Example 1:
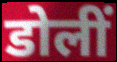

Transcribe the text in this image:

डोलीं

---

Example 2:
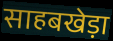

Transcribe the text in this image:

साहबखेड़ा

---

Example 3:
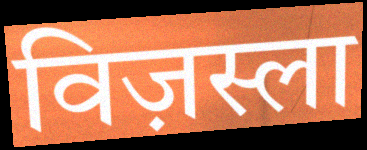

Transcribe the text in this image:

विज़स्ला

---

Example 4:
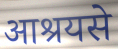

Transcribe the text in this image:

आश्रयसे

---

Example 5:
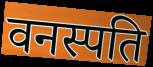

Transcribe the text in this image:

वनस्पति